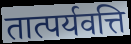
तात्पर्यवत्ति